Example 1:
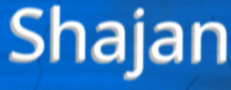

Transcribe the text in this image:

Shajan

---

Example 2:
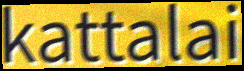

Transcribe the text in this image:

kattalai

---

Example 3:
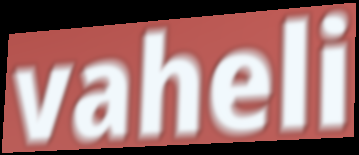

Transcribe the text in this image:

vaheli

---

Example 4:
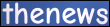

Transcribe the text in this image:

thenews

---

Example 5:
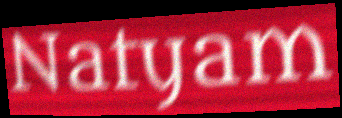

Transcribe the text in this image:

Natyam